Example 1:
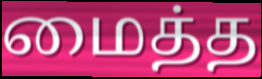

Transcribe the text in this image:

மைத்த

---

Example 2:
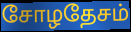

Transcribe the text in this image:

சோழதேசம்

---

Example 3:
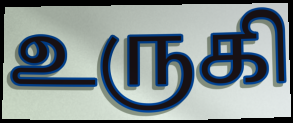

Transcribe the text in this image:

உருகி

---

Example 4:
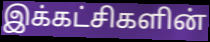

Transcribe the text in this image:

இக்கட்சிகளின்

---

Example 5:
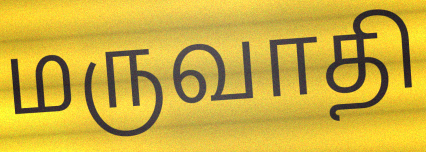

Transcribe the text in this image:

மருவாதி